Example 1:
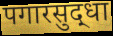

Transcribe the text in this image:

पगारसुद्धा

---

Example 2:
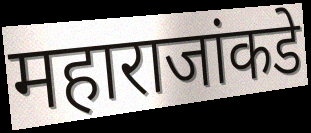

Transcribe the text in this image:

महाराजांकडे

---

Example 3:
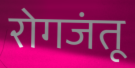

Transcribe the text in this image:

रोगजंतू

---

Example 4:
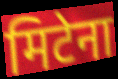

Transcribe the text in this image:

मिटेना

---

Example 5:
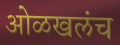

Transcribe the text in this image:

ओळखलंच